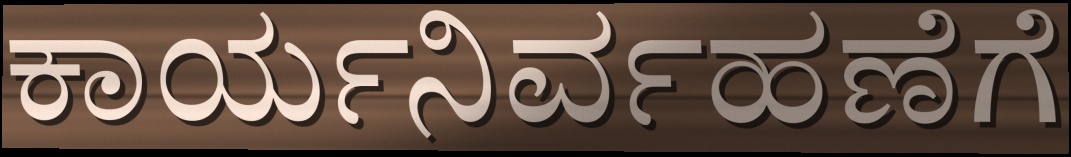
ಕಾರ್ಯನಿರ್ವಹಣೆಗೆ